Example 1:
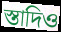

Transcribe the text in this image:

স্তাদিও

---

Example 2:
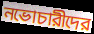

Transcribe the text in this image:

নভোচারীদের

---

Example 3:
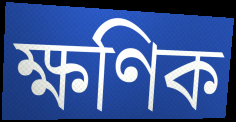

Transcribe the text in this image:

ক্ষণিক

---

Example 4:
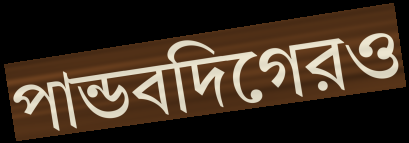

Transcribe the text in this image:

পান্ডবদিগেরও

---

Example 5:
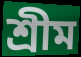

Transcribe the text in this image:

শ্রীম